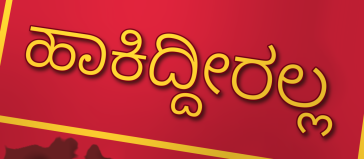
ಹಾಕಿದ್ದೀರಲ್ಲ